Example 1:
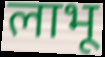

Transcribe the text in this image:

लाभू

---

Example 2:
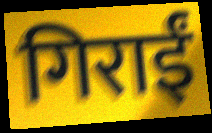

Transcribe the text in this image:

गिराईं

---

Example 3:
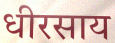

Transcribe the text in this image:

धीरसाय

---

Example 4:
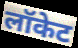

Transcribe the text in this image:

लॉकेट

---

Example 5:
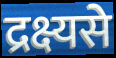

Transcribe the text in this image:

द्रक्ष्यसे